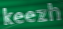
keezh